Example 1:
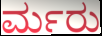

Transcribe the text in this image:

ರ್ಮರು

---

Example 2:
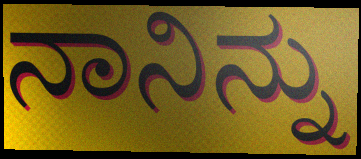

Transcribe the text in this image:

ನಾನಿನ್ನು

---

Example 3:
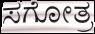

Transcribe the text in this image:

ಸಗೋತ್ರ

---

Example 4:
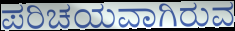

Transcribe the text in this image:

ಪರಿಚಯವಾಗಿರುವ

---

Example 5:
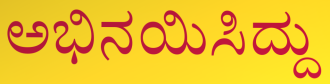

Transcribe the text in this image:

ಅಭಿನಯಿಸಿದ್ದು